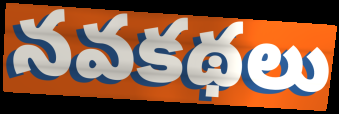
నవకథలు